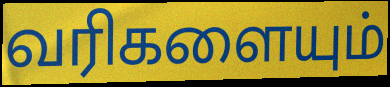
வரிகளையும்